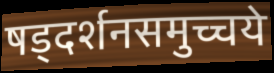
षड्दर्शनसमुच्चये